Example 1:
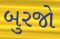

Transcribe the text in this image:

બુરજો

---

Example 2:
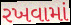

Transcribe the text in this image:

રખવામાં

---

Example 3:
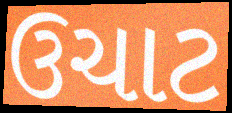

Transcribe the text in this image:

ઉચાટ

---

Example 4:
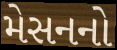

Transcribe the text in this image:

મેસનનો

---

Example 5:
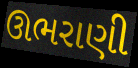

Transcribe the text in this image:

ઊભરાણી